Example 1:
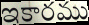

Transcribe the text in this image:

ఇకారము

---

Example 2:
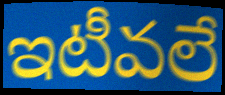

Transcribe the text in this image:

ఇటీవలే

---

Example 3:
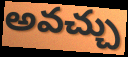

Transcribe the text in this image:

అవచ్చు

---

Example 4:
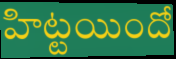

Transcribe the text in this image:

హిట్టయిందో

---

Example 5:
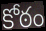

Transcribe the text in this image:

కోఠం